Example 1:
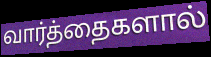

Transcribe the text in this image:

வார்த்தைகளால்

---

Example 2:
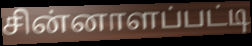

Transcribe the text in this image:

சின்னாளப்பட்டி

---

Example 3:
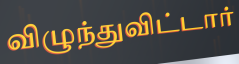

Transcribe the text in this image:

விழுந்துவிட்டார்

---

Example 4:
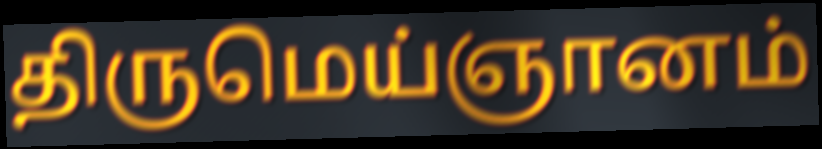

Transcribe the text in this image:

திருமெய்ஞானம்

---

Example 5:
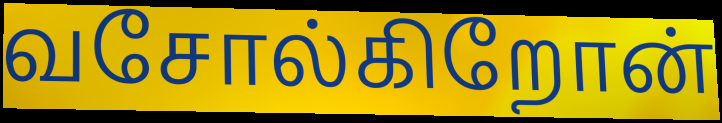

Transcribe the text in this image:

வசோல்கிறோன்